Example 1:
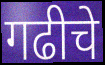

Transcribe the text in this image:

गढीचे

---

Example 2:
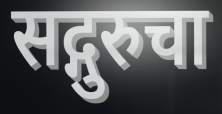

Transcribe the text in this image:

सद्गुरुचा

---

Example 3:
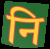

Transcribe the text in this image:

नि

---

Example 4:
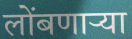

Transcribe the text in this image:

लोंबणार्‍या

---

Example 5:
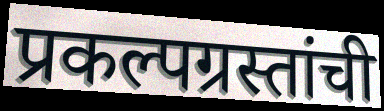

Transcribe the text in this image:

प्रकल्पग्रस्तांची